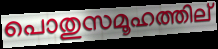
പൊതുസമൂഹത്തില്